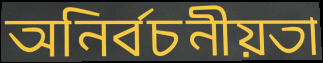
অনির্বচনীয়তা